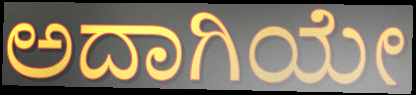
ಅದಾಗಿಯೇ